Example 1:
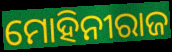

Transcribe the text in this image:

ମୋହିନୀରାଜ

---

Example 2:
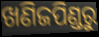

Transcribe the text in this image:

ଖଣିଜପିଣ୍ଡରୁ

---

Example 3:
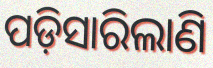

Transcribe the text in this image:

ପଡ଼ିସାରିଲାଣି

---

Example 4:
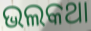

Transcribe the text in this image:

ଭଲକଥା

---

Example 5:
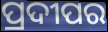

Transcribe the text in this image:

ପ୍ରଦୀପର